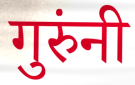
गुरुंनी